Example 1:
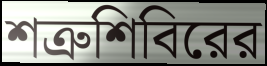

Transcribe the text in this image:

শত্রুশিবিরের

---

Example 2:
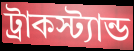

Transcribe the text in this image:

ট্রাকস্ট্যান্ড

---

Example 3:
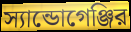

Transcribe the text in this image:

স্যান্ডোগেঞ্জির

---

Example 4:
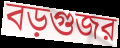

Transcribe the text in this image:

বড়গুজর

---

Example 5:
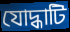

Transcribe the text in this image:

যোদ্ধাটি